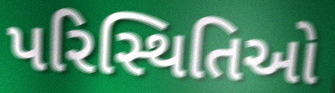
પરિસ્થિતિઓ